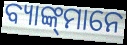
ବ୍ୟାଙ୍କ୍‌ମାନେ